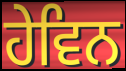
ਹੇਵਿਨ